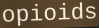
opioids